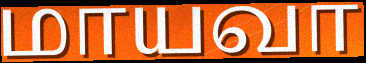
மாயவா